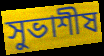
সুভাশীষ